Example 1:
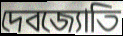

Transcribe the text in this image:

দেবজ্যোতি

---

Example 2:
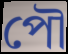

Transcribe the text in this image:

পৌ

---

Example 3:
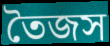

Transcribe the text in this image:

তৈজস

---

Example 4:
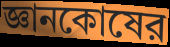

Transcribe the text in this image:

জ্ঞানকোষের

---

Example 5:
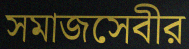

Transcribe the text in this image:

সমাজসেবীর